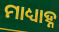
ମାଧ୍ୟାହ୍ନ